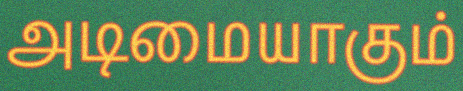
அடிமையாகும்